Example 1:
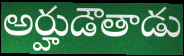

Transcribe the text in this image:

అర్హుడౌతాడు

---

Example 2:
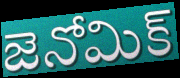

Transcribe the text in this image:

జెనోమిక్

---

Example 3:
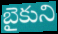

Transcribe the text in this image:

బైకుని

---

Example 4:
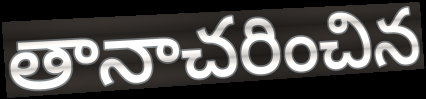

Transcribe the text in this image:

తానాచరించిన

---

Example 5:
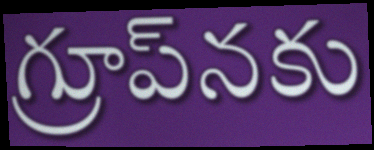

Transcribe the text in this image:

గ్రూప్‌నకు